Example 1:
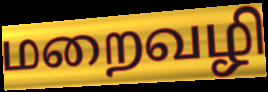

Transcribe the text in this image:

மறைவழி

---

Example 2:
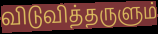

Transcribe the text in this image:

விடுவித்தருளும்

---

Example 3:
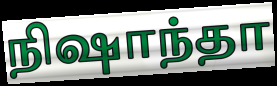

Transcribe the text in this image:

நிஷாந்தா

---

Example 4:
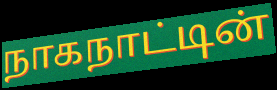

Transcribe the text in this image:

நாகநாட்டின்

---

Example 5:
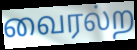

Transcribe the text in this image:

வைரல்ற